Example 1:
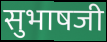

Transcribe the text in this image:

सुभाषजी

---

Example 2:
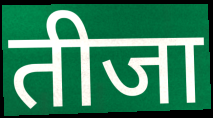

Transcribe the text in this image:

तीजा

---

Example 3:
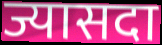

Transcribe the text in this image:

ज्यासदा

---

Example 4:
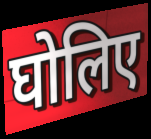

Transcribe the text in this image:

घोलिए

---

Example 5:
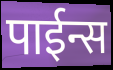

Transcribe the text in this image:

पाईन्स